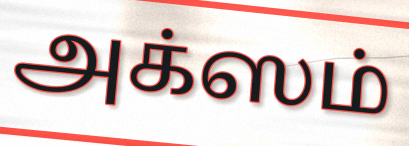
அக்ஸம்